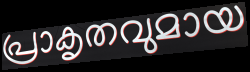
പ്രാകൃതവുമായ